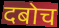
दबोच